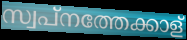
സ്വപ്നത്തേക്കാള്